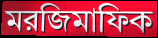
মরজিমাফিক